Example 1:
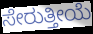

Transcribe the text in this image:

ಸೇರುತ್ತೀಯೆ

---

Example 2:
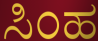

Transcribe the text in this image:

ಸಿಂಹ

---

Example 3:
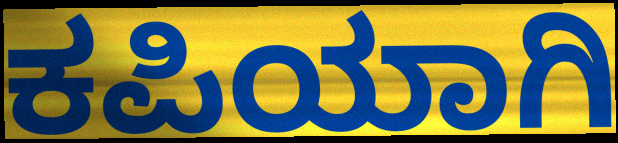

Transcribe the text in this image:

ಕಪಿಯಾಗಿ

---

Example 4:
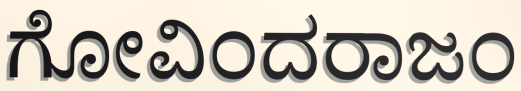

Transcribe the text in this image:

ಗೋವಿಂದರಾಜಂ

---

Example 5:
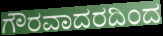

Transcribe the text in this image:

ಗೌರವಾದರದಿಂದ